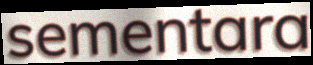
sementara